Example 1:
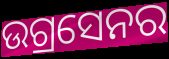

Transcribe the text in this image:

ଉଗ୍ରସେନର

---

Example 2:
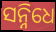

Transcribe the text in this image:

ସନ୍ନିଧେ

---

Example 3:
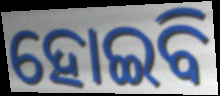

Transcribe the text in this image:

ହୋଇବି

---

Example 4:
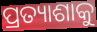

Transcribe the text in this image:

ପ୍ରତ୍ୟାଶାକୁ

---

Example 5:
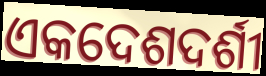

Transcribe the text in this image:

ଏକଦେଶଦର୍ଶୀ